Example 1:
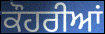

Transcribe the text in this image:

ਕੌਹਰੀਆਂ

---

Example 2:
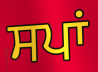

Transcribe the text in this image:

ਸਪਾਂ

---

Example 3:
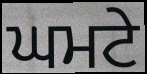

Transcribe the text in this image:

ਘਮਟੇ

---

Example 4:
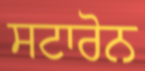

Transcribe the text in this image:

ਸਟਾਰੋਨ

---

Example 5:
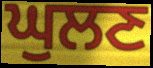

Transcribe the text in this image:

ਘੁਲਣ